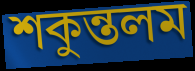
শকুন্তলম